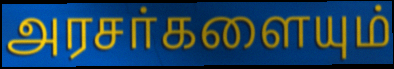
அரசர்களையும்